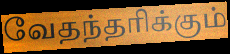
வேதந்தரிக்கும்